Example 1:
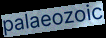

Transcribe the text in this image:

palaeozoic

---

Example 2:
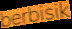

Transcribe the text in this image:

berbisik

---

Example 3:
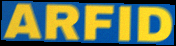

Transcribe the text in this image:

ARFID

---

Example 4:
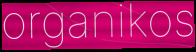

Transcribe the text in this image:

organikos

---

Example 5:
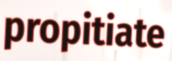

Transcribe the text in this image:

propitiate